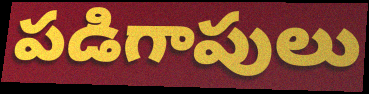
పడిగాపులు